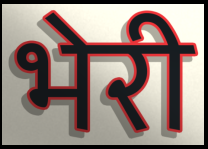
भेरी